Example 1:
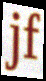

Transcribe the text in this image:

jf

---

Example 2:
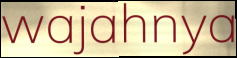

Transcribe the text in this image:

wajahnya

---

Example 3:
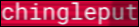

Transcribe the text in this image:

chingleput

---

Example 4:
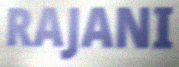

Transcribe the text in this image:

RAJANI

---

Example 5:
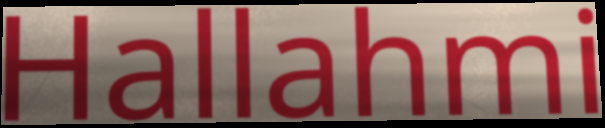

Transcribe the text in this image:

Hallahmi